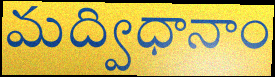
మద్విధానాం